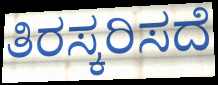
ತಿರಸ್ಕರಿಸದೆ